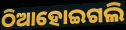
ଠିଆହୋଇଗଲି